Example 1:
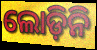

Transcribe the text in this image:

ଲୋଡ଼ିନି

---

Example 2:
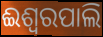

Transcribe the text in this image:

ଈଶ୍ୱରପାଲି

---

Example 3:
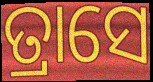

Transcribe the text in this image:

ତ୍ରାସେ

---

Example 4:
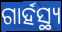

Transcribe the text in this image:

ଗାର୍ହସ୍ଥ୍ୟ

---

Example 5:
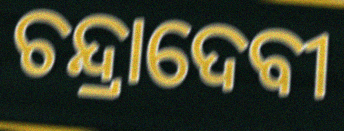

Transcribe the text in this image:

ଚନ୍ଦ୍ରାଦେବୀ